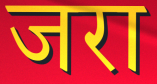
जरा